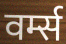
वर्म्स